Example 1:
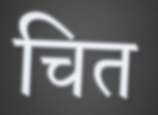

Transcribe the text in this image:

चित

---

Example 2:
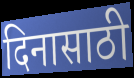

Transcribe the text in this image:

दिनासाठी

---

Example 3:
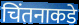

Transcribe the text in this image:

चिंतनाकडे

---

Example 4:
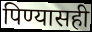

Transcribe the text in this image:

पिण्यासही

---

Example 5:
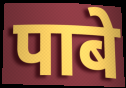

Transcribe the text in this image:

पाबे